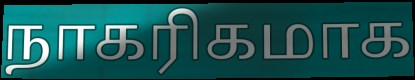
நாகரிகமாக